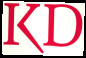
KD